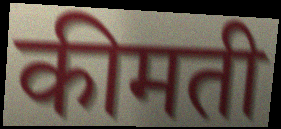
कीमती